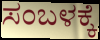
ಸಂಬಳಕ್ಕೆ